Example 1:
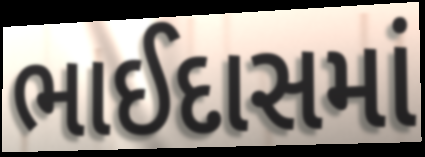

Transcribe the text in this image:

ભાઈદાસમાં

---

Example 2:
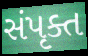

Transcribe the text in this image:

સંપૃક્ત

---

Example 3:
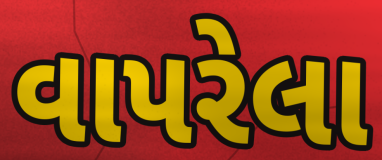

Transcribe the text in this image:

વાપરેલા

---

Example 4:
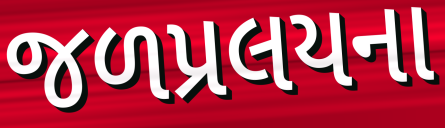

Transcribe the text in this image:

જળપ્રલયના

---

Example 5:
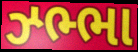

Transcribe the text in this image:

ઝ્ભ્ભા